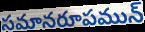
సమానరూపమున్